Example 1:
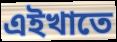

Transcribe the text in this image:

এইখাতে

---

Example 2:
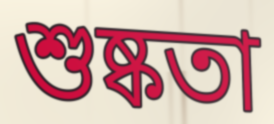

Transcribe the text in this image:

শুষ্কতা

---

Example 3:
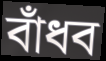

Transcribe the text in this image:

বাঁধব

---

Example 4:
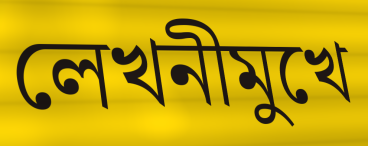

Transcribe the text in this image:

লেখনীমুখে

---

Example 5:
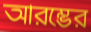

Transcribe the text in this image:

আরম্ভের